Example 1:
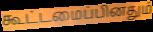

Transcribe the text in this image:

கூட்டமைப்பினதும்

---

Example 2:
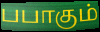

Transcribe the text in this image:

பபாகும்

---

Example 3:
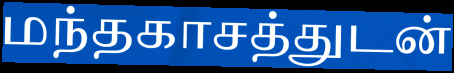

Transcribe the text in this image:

மந்தகாசத்துடன்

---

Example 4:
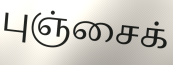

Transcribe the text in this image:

புஞ்சைக்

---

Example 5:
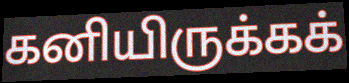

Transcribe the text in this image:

கனியிருக்கக்